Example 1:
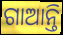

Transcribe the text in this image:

ଗାଆନ୍ତି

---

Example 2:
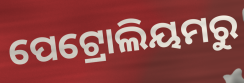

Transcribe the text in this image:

ପେଟ୍ରୋଲିୟମରୁ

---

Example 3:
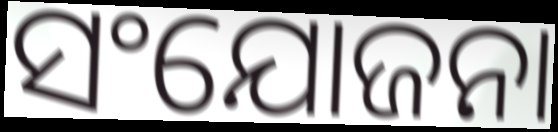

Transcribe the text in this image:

ସଂଯୋଜନା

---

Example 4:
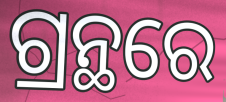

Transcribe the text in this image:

ଗ୍ରନ୍ଥରେ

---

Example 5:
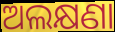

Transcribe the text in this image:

ଅଲକ୍ଷଣା